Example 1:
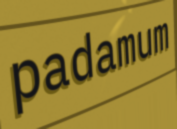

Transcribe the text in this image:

padamum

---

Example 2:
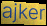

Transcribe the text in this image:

ajker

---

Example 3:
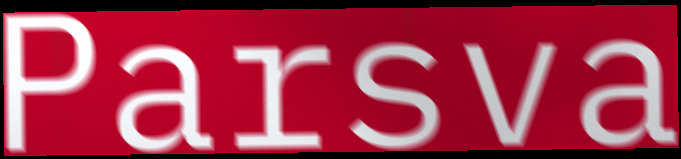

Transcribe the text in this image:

Parsva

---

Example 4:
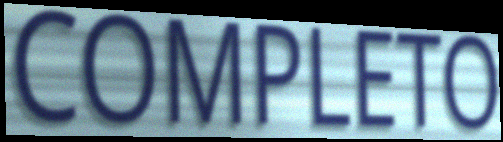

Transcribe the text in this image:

COMPLETO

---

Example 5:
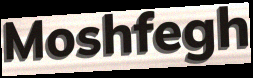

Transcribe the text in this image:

Moshfegh